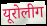
यूरोलीग